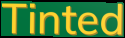
Tinted